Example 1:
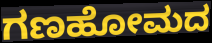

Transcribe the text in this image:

ಗಣಹೋಮದ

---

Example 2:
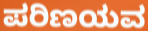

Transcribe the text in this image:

ಪರಿಣಯವ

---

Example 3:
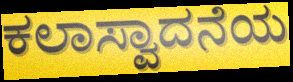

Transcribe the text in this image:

ಕಲಾಸ್ವಾದನೆಯ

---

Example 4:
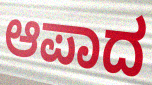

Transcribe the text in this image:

ಆಪಾದ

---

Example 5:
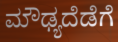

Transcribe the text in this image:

ಮೌಢ್ಯದೆಡೆಗೆ